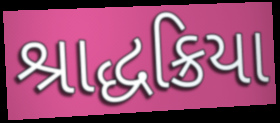
શ્રાદ્ધક્રિયા